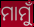
ମାମୁଁ